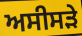
ਅਸੀਸੜੇ